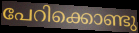
പേറിക്കൊണ്ടു